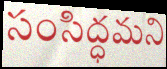
సంసిద్ధమని